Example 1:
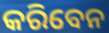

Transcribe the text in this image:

କରିବେନ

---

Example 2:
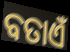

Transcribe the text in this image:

ବତାଏଁ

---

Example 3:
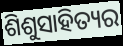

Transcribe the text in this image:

ଶିଶୁସାହିତ୍ୟର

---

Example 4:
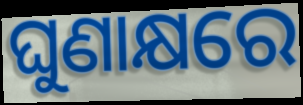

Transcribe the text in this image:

ଘୁଣାକ୍ଷରେ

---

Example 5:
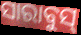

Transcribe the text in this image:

ସାରାବୁସ୍